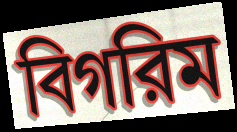
বিগরিম